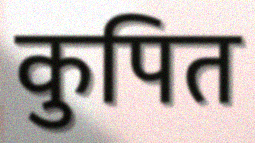
कुपित